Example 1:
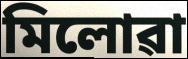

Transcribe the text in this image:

মিলোৱা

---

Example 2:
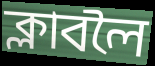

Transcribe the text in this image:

ক্লাবলৈ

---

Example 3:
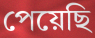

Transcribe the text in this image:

পেয়েছি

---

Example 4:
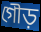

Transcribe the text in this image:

গৌড়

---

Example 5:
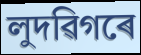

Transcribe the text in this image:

লুদৱিগৰে